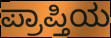
ಪ್ರಾಪ್ತಿಯ